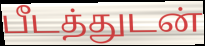
பீடத்துடன்